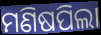
ମଣିଷପିଲା